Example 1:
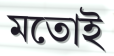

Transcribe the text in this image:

মতোই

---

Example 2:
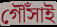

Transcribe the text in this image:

গৌঁসাই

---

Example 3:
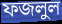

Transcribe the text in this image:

ফজলুল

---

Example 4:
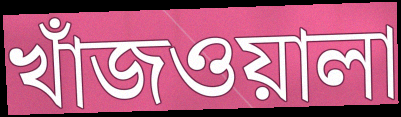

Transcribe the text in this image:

খাঁজওয়ালা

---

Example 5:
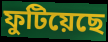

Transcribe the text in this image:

ফুটিয়েছে